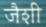
जैशी